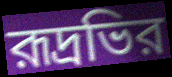
রূদ্রভির